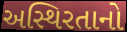
અસ્થિરતાનો